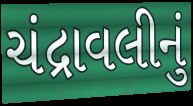
ચંદ્રાવલીનું